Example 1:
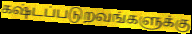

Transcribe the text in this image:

கஷ்டப்படுறவங்களுக்கு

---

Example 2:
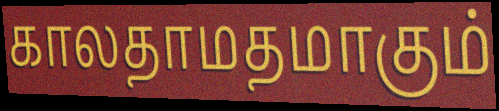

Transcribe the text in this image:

காலதாமதமாகும்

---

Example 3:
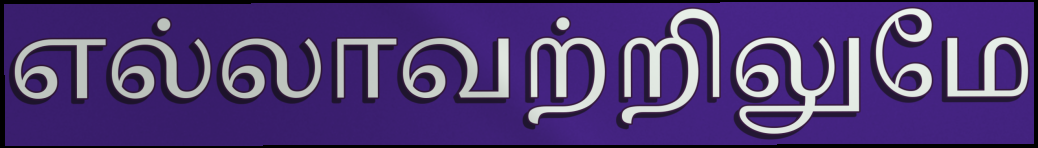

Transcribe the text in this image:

எல்லாவற்றிலுமே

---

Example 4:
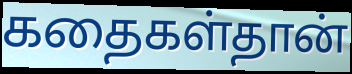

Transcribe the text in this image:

கதைகள்தான்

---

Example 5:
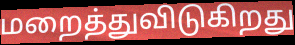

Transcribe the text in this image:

மறைத்துவிடுகிறது